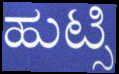
ಹುಟ್ಸಿ